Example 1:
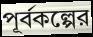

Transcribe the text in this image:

পূর্বকল্পের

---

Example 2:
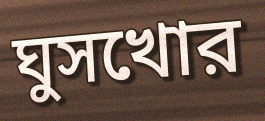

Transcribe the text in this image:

ঘুসখোর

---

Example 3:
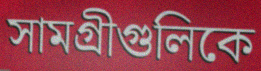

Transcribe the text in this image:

সামগ্রীগুলিকে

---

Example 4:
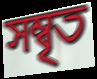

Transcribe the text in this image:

সম্বৃত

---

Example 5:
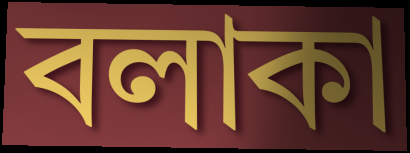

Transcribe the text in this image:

বলাকা